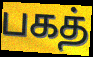
பகத்